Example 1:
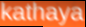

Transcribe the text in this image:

kathaya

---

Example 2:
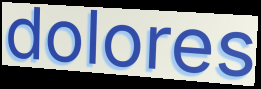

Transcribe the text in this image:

dolores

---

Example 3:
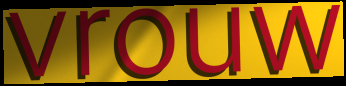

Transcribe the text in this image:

vrouw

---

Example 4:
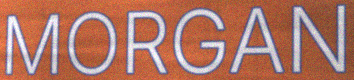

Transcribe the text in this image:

MORGAN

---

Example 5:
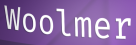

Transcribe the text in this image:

Woolmer